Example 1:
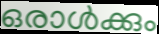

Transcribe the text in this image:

ഒരാൾക്കും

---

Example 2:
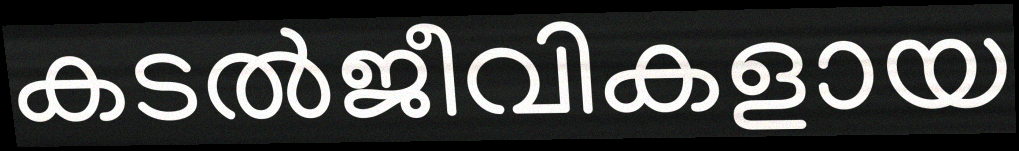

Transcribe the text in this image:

കടൽജീവികളായ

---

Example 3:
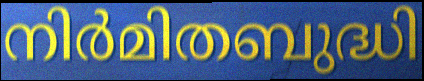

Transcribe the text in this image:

നിർമിതബുദ്ധി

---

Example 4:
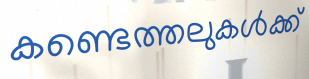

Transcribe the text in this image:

കണ്ടെത്തലുകൾക്ക്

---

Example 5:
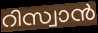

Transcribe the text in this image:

റിസ്വാൻ